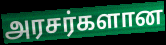
அரசர்களான